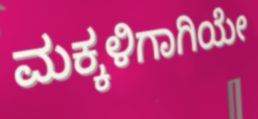
ಮಕ್ಕಳಿಗಾಗಿಯೇ